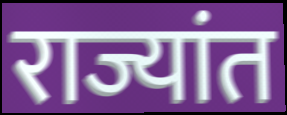
राज्यांत